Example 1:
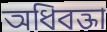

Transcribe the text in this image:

অধিবক্তা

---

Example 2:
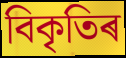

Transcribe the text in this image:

বিকৃতিৰ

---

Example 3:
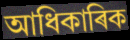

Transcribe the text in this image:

আধিকাৰিক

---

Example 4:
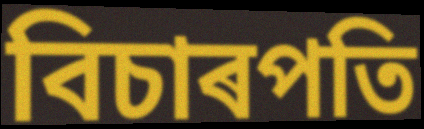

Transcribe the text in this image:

বিচাৰপতি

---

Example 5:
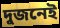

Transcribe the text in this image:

দুজনেই